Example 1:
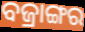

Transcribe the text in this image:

ବଜ୍ରାଙ୍ଗର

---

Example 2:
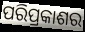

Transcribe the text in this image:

ପରିପ୍ରକାଶର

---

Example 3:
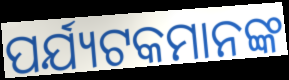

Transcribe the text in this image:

ପର୍ଯ୍ୟଟକମାନଙ୍କ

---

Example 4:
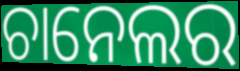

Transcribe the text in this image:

ଚାନେଲର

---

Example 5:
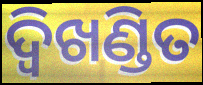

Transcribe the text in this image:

ଦ୍ଵିଖଣ୍ଡିତ